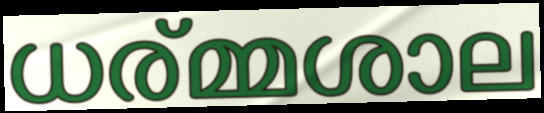
ധര്മ്മശാല